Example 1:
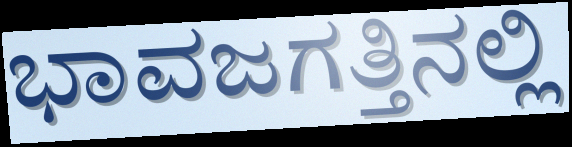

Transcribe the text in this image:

ಭಾವಜಗತ್ತಿನಲ್ಲಿ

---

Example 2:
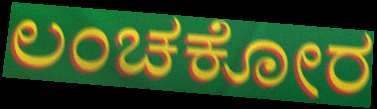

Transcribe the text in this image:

ಲಂಚಕೋರ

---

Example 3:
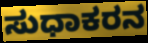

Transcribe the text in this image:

ಸುಧಾಕರನ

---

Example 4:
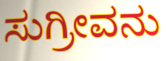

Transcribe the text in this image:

ಸುಗ್ರೀವನು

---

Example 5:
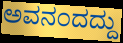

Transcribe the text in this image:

ಅವನಂದದ್ದು